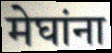
मेघांना